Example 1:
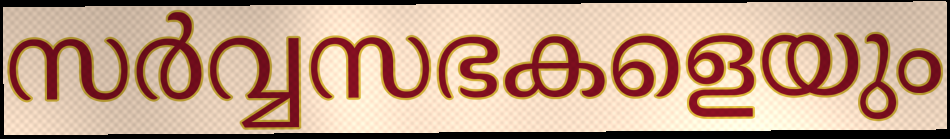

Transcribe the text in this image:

സർവ്വസഭകളെയും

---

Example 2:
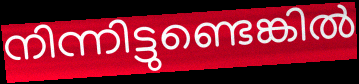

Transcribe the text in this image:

നിന്നിട്ടുണ്ടെങ്കിൽ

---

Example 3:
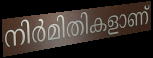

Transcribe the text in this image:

നിർമിതികളാണ്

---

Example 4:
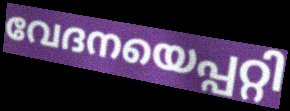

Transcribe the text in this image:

വേദനയെപ്പറ്റി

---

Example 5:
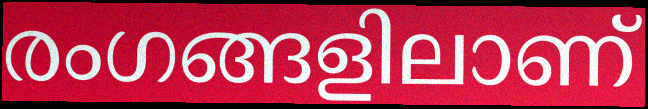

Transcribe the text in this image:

രംഗങ്ങളിലാണ്